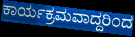
ಕಾರ್ಯಕ್ರಮವಾದ್ದರಿಂದ